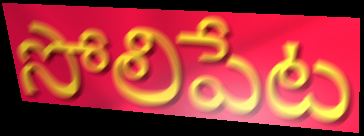
సోలిపేట